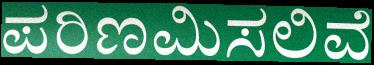
ಪರಿಣಮಿಸಲಿವೆ